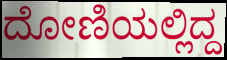
ದೋಣಿಯಲ್ಲಿದ್ದ